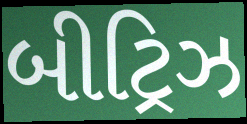
બીટ્રિઝ